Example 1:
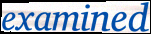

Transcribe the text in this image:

examined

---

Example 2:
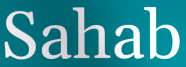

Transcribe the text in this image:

Sahab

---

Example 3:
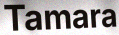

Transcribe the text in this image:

Tamara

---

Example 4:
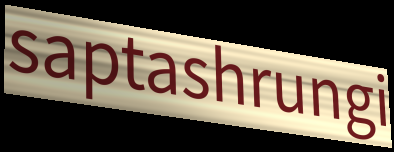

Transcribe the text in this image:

saptashrungi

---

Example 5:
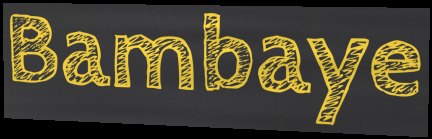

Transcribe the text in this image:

Bambaye